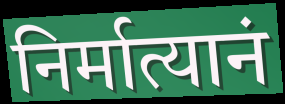
निर्मात्यानं